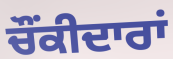
ਚੌਂਕੀਦਾਰਾਂ